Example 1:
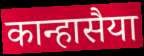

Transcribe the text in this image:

कान्हासैया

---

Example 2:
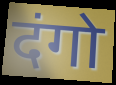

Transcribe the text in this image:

दंगो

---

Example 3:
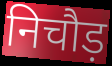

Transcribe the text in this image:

निचौड़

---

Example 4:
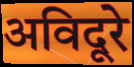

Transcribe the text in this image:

अविदूरे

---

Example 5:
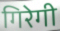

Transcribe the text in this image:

गिरेगी